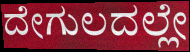
ದೇಗುಲದಲ್ಲೇ